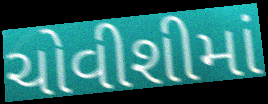
ચોવીશીમાં